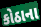
કોઠાના